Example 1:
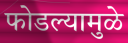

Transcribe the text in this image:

फोडल्यामुळे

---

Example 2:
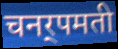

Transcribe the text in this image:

चनर्पमती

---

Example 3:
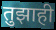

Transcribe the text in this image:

तुझाही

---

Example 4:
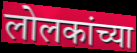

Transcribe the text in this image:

लोलकांच्या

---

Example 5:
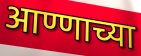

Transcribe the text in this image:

आण्णाच्या